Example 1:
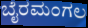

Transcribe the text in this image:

ಬೈರಮಂಗಲ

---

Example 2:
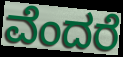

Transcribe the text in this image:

ವೆಂದರೆ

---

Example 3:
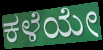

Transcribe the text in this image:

ಕಳೆಯೇ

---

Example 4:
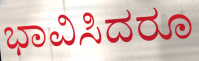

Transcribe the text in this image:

ಭಾವಿಸಿದರೂ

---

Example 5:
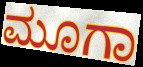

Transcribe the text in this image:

ಮೂಗಾ